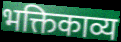
भक्तिकाव्य